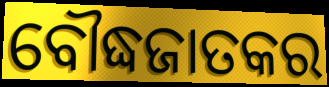
ବୌଦ୍ଧଜାତକର